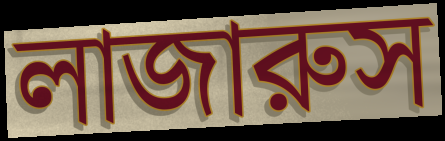
লাজারুস